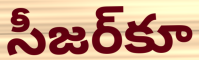
సీజర్‌కూ